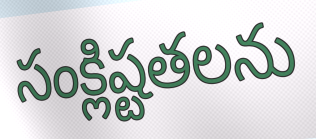
సంక్లిష్టతలను